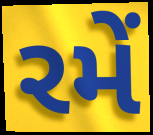
રમેં